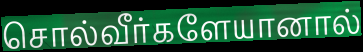
சொல்வீர்களேயானால்